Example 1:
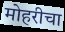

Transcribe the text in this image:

मोहरीचा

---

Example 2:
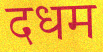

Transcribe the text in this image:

दधम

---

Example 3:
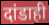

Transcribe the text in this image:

दांडाही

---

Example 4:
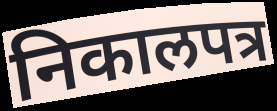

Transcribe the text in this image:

निकालपत्र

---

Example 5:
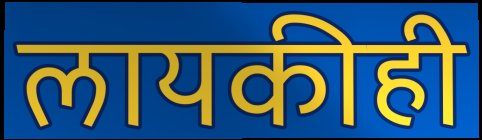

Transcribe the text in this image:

लायकीही